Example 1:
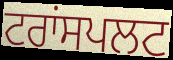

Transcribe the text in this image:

ਟਰਾਂਸਪਲਟ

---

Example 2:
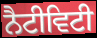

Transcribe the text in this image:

ਨੈਟੀਵਿਟੀ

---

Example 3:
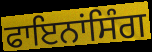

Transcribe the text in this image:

ਫਾਇਨਾਂਸਿੰਗ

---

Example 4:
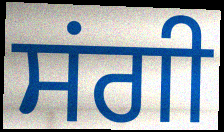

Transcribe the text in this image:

ਸਂਗੀ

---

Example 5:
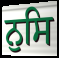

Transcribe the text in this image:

ਨੁਸਿ